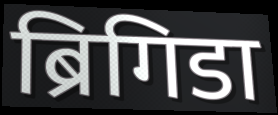
ब्रिगिडा